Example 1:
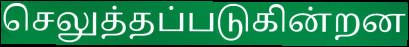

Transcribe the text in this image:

செலுத்தப்படுகின்றன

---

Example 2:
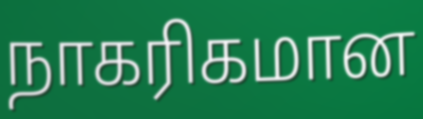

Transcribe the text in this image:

நாகரிகமான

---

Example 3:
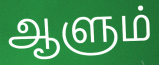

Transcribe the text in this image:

ஆளும்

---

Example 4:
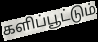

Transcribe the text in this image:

களிப்பூட்டும்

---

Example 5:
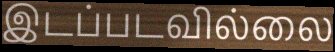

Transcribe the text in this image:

இடப்படவில்லை